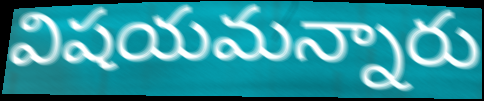
విషయమన్నారు